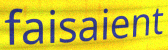
faisaient